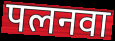
पलनवा